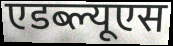
एडब्ल्यूएस